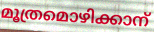
മൂത്രമൊഴിക്കാന്